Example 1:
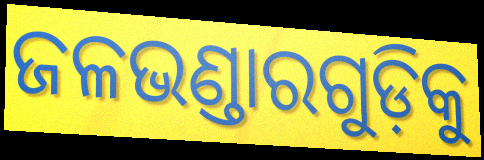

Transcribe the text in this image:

ଜଳଭଣ୍ଡାରଗୁଡ଼ିକୁ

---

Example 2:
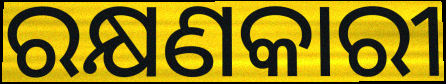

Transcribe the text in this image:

ରକ୍ଷଣକାରୀ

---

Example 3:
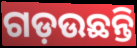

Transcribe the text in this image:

ଗଡ଼ଉଛନ୍ତି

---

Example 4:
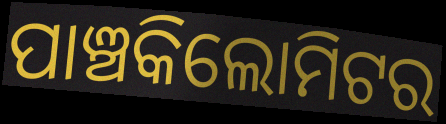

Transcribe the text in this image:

ପାଞ୍ଚକିଲୋମିଟର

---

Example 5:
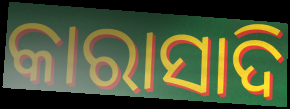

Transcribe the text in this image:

କାରାସାଦି